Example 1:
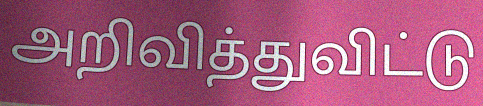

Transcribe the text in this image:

அறிவித்துவிட்டு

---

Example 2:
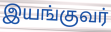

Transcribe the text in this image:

இயங்குவர்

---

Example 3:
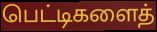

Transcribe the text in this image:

பெட்டிகளைத்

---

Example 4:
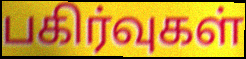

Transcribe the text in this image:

பகிர்வுகள்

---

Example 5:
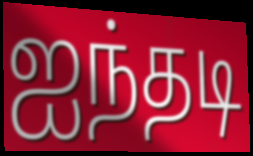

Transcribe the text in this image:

ஐந்தடி